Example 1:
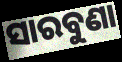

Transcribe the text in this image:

ସାରବୁଣା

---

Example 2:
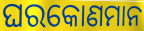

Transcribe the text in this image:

ଘରକୋଣମାନ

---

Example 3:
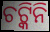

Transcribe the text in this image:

ଚଟ୍କିନି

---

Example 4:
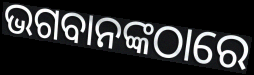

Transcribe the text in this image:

ଭଗବାନଙ୍କଠାରେ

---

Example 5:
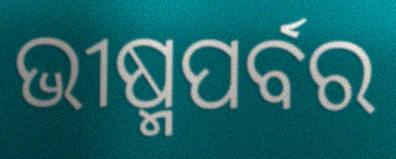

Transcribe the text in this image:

ଭୀଷ୍ମପର୍ବର